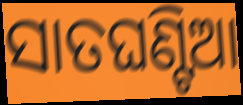
ସାତଘଣ୍ଟିଆ